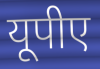
यूपीए